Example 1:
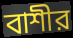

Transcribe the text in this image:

বাশীর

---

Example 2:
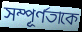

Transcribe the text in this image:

সম্পূর্ণতাকে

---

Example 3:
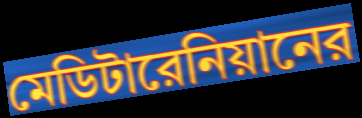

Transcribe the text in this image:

মেডিটারেনিয়ানের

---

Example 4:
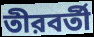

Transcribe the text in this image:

তীরবর্তী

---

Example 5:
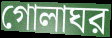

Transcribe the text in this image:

গোলাঘর